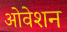
ओवेशन